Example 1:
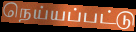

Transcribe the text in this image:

நெய்யப்பட்டு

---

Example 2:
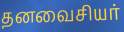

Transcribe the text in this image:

தனவைசியர்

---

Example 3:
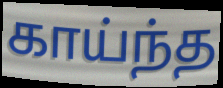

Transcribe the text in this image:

காய்ந்த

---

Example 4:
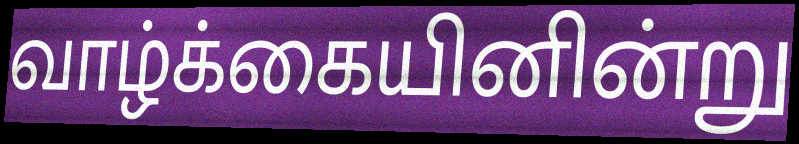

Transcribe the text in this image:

வாழ்க்கையினின்று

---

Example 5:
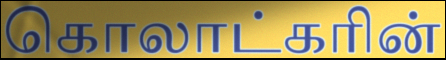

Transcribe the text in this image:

கொலாட்கரின்